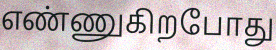
எண்ணுகிறபோது